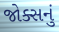
જોક્સનું